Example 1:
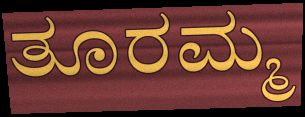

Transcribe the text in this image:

ತೂರಮ್ಮ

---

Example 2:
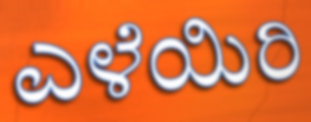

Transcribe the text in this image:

ಎಳೆಯಿರಿ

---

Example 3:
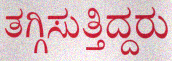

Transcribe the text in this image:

ತಗ್ಗಿಸುತ್ತಿದ್ದರು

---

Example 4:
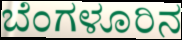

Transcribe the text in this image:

ಬೆಂಗಳೂರಿನ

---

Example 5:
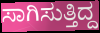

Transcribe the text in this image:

ಸಾಗಿಸುತ್ತಿದ್ದ